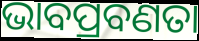
ଭାବପ୍ରବଣତା